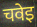
चवेइ